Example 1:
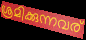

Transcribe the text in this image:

ശ്രമിക്കുന്നവര്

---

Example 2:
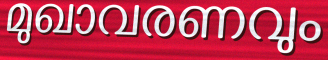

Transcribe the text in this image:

മുഖാവരണവും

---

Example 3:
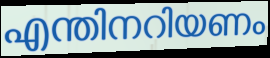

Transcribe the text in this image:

എന്തിനറിയണം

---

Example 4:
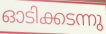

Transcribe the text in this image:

ഓടിക്കടന്നു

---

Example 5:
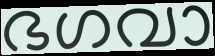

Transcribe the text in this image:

ഭഗവാ